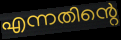
എന്നതിന്റെ